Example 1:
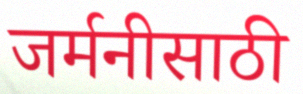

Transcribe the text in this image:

जर्मनीसाठी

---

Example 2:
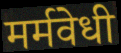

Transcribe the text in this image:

मर्मवेधी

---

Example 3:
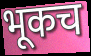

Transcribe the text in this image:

भूकच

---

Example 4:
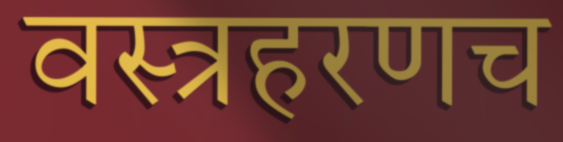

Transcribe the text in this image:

वस्त्रहरणच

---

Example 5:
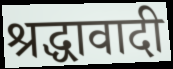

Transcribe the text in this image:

श्रद्धावादी